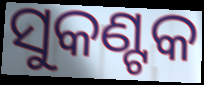
ସୁକଣ୍ଟକ